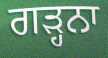
ਗੜ੍ਹਨਾ